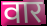
वार